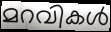
മറവികൾ